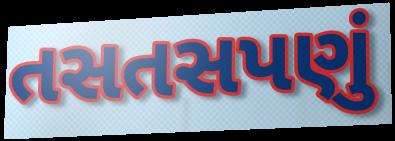
તસતસપણું